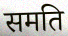
समति